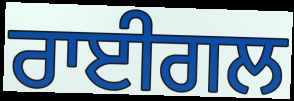
ਰਾਈਗਲ